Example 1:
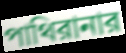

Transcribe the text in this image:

পাথিরানার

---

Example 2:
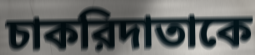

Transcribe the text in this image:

চাকরিদাতাকে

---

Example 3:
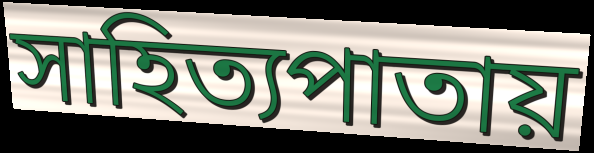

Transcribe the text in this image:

সাহিত্যপাতায়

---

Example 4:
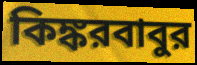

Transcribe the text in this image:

কিঙ্করবাবুর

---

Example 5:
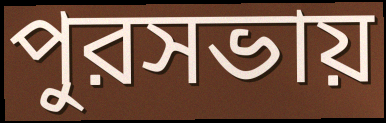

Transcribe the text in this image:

পুরসভায়